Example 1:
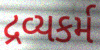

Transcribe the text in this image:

દ્રવ્યકર્મ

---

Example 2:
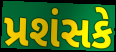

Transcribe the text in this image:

પ્રશંસકે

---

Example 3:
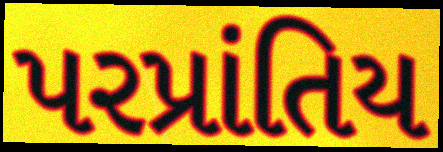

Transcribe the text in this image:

પરપ્રાંતિય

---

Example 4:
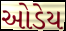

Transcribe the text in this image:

ઓડેય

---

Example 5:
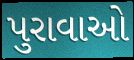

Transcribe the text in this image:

પુરાવાઓ